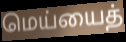
மெய்யைத்